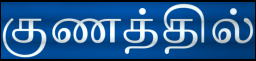
குணத்தில்